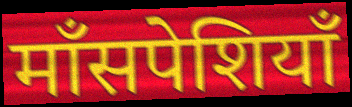
माँसपेशियाँ